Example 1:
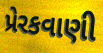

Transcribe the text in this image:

પ્રેરકવાણી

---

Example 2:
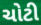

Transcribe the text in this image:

ચોટી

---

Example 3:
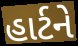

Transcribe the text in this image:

હાર્ટને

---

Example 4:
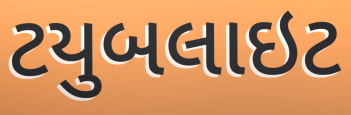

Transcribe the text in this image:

ટયુબલાઇટ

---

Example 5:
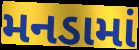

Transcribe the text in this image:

મનડામાં